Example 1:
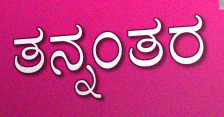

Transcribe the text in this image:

ತನ್ನಂತರ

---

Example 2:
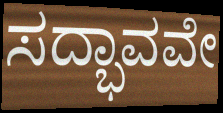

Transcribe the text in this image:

ಸದ್ಭಾವವೇ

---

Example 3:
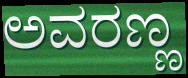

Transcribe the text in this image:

ಅವರಣ್ಣ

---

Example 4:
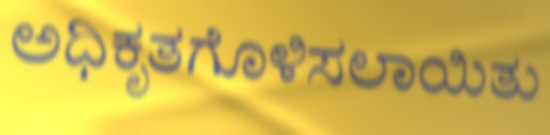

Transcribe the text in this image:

ಅಧಿಕೃತಗೊಳಿಸಲಾಯಿತು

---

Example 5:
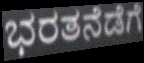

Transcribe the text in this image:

ಭರತನೆಡೆಗೆ